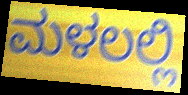
ಮಳಲಲ್ಲಿ